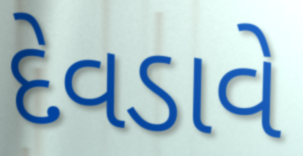
દેવડાવે